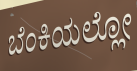
ಬೆಂಕಿಯಲ್ಲೋ